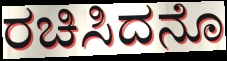
ರಚಿಸಿದನೊ